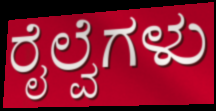
ರೈಲ್ವೆಗಳು